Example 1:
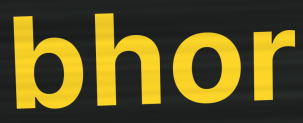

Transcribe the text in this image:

bhor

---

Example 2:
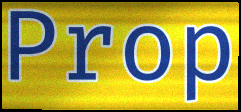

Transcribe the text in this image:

Prop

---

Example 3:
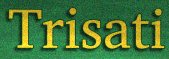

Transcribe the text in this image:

Trisati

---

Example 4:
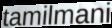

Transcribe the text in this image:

tamilmani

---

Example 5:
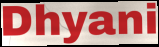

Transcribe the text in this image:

Dhyani